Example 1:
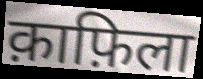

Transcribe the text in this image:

क़ाफ़िला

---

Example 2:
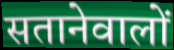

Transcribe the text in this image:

सतानेवालों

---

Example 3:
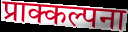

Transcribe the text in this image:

प्राक्कल्पना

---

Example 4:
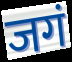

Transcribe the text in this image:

जगं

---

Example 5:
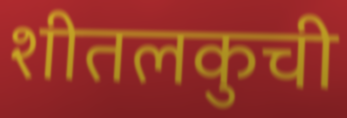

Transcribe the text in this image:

शीतलकुची